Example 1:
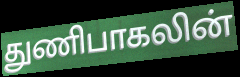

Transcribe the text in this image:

துணிபாகலின்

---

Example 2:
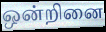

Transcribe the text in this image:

ஒன்றினை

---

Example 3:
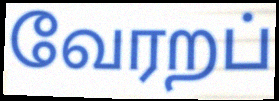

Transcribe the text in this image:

வேரறப்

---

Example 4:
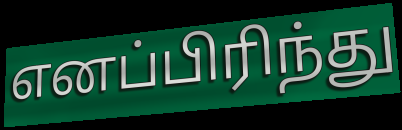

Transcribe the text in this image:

எனப்பிரிந்து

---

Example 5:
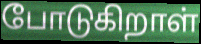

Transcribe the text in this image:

போடுகிறாள்